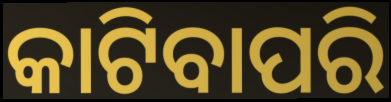
କାଟିବାପରି